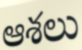
ఆశలు